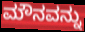
ಮೌನವನ್ನು